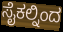
ಸೈಕಲ್ನಿಂದ